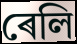
ৰেলি